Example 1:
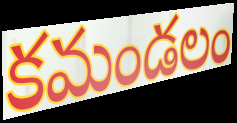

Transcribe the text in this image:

కమండలం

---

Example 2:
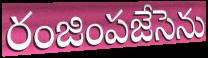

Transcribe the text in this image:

రంజింపజేసెను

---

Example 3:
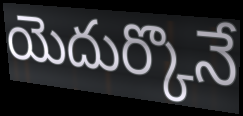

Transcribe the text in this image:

యెదుర్కొనే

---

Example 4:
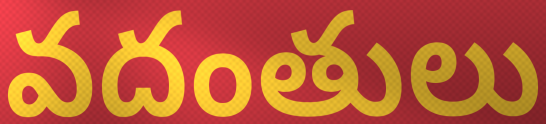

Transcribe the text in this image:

వదంతులు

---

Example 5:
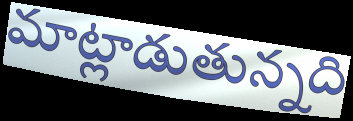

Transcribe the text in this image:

మాట్లాడుతున్నది